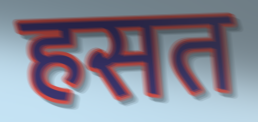
हसत